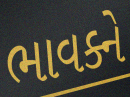
ભાવક્ને